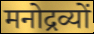
मनोद्रव्यों